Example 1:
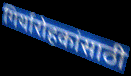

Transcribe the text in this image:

गिर्यारोहकांसाठी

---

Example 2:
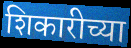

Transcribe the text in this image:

शिकारीच्या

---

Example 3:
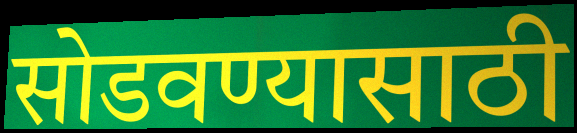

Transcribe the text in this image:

सोडवण्यासाठी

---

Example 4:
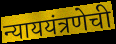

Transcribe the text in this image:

न्याययंत्रणेची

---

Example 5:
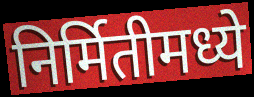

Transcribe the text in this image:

निर्मितीमध्ये